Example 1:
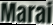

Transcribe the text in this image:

Marai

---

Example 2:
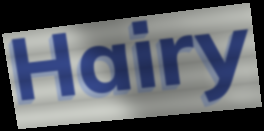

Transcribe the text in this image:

Hairy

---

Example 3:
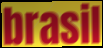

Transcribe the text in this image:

brasil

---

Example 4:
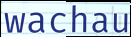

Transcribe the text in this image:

wachau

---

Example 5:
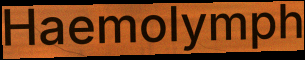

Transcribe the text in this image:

Haemolymph